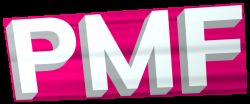
PMF